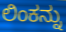
ಲಿಂಕನ್ನು